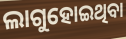
ଲାଗୁହୋଇଥିବା